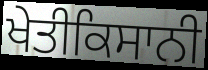
ਖੇਤੀਕਿਸਾਨੀ